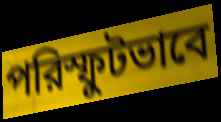
পরিস্ফুটভাবে